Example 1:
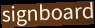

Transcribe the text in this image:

signboard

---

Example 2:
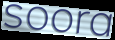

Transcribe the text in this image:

soora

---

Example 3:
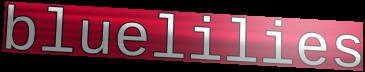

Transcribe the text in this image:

bluelilies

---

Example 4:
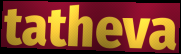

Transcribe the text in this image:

tatheva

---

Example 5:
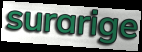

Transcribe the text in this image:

surarige